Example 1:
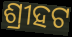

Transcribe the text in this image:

ଶ୍ରୀହଟ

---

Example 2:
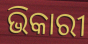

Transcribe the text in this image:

ଭିକାରୀ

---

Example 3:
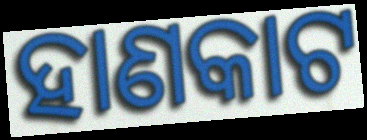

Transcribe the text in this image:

ହାଣକାଟ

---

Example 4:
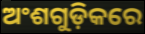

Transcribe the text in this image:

ଅଂଶଗୁଡ଼ିକରେ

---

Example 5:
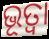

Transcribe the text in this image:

ଭୂତ୍ୱା